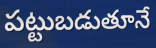
పట్టుబడుతూనే